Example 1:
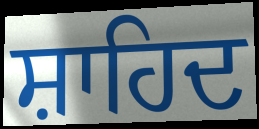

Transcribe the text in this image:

ਸ਼ਾਹਿਦ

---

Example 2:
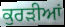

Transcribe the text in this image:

ਕੁਰੜੀਆਂ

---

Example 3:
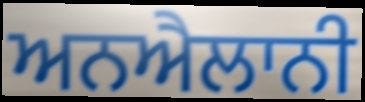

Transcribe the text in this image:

ਅਨਐਲਾਨੀ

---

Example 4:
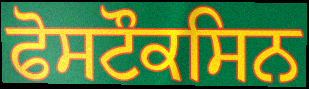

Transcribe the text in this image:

ਫੋਸਟੌਕਸਿਨ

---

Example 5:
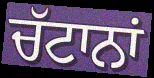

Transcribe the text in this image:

ਚੱਟਾਨਾਂ